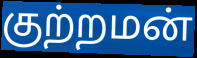
குற்றமன்